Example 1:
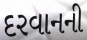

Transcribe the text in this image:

દરવાનની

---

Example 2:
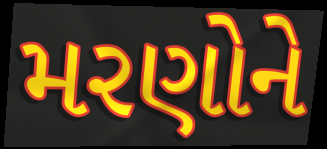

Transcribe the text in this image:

મરણોને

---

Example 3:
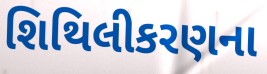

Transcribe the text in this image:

શિથિલીકરણના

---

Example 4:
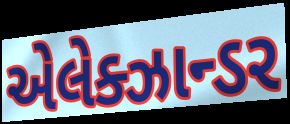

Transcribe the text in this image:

એલેક્ઝાન્ડર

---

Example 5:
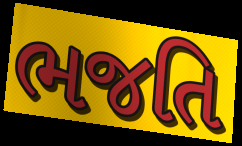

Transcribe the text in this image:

ભજતિ